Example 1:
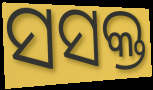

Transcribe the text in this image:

ସସକ୍ତ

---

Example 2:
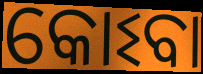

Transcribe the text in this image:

କୋଽବା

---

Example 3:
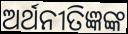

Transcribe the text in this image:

ଅର୍ଥନୀତିଜ୍ଞଙ୍କ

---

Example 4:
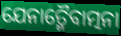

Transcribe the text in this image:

ଯେନାତ୍ମୈବାତ୍ମନା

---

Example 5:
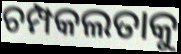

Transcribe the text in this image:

ଚମ୍ପକଲତାକୁ